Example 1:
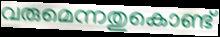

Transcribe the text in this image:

വരുമെന്നതുകൊണ്ട്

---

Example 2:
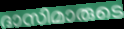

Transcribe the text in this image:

ദാസിമാരുടെ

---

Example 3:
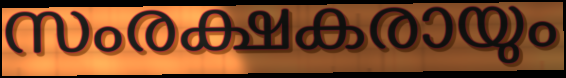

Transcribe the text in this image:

സംരക്ഷകരായും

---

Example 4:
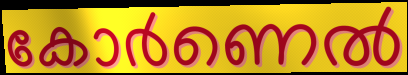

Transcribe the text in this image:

കോർണെൽ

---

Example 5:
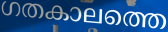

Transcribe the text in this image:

ഗതകാലത്തെ